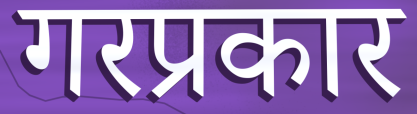
गरप्रकार